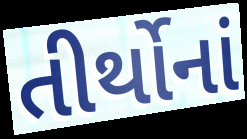
તીર્થોનાં